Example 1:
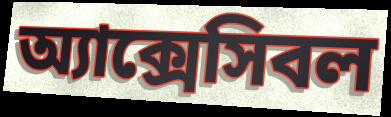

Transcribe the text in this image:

অ্যাক্সেসিবল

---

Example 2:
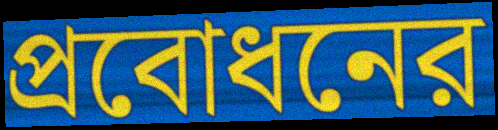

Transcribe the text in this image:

প্রবোধনের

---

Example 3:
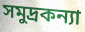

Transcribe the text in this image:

সমুদ্রকন্যা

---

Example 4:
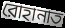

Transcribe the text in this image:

রোহানাত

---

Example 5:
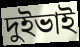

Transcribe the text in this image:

দুইভাই